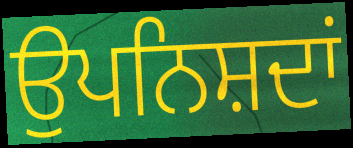
ਉਪਨਿਸ਼ਦਾਂ